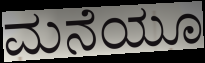
ಮನೆಯೂ